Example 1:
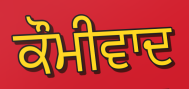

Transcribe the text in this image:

ਕੌਮੀਵਾਦ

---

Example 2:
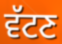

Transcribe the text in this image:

ਵੱਟਣ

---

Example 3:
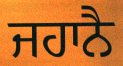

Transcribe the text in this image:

ਜਹਾਨੈ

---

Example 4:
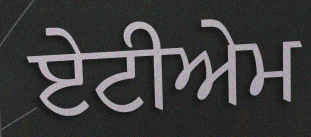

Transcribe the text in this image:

ਏਟੀਅੇਮ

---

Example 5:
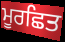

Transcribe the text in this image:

ਮੂਰਛਿਤ